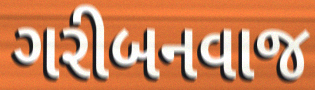
ગરીબનવાજ